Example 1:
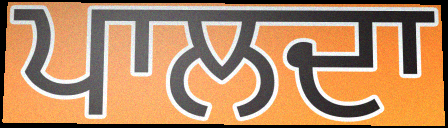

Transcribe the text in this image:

ਪਾਲਦਾ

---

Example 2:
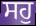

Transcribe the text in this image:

ਸਹੁ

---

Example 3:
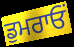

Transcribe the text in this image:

ਡੁਮਰਾਓਂ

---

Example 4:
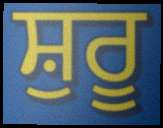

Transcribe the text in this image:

ਸ਼ੁਰੂ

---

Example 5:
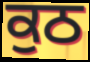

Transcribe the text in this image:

ਕੁਠ